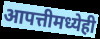
आपत्तीमध्येही